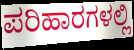
ಪರಿಹಾರಗಳಲ್ಲಿ